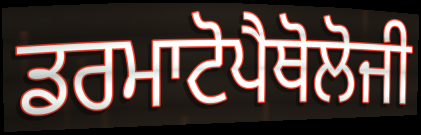
ਡਰਮਾਟੋਪੈਥੋਲੋਜੀ